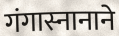
गंगास्नानाने